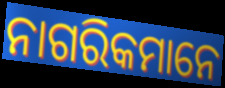
ନାଗରିକମାନେ